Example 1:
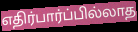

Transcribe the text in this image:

எதிர்பார்ப்பில்லாத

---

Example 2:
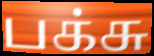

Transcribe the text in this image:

பக்சு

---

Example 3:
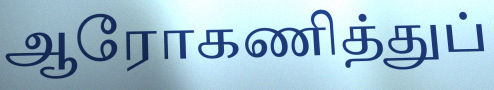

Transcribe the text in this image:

ஆரோகணித்துப்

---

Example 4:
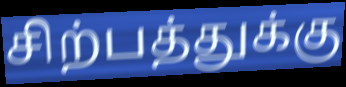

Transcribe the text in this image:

சிற்பத்துக்கு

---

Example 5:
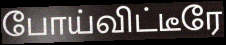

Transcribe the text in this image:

போய்விட்டீரே